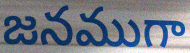
జనముగా